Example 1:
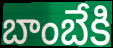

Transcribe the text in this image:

బాంబేకి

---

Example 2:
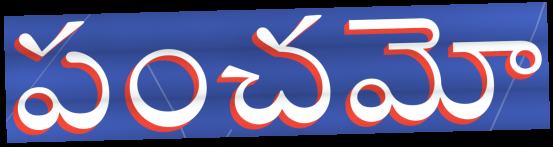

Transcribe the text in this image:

పంచమో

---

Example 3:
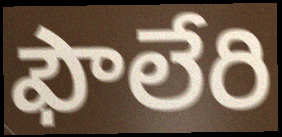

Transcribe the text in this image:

ఫౌలేరి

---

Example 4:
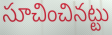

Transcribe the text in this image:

సూచించినట్టు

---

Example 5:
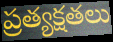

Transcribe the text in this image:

ప్రత్యక్షతలు